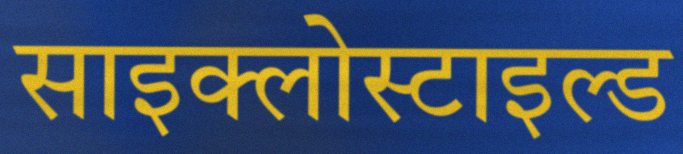
साइक्लोस्टाइल्ड